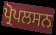
ਪ੍ਰੋਪਲਸਨ